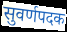
सुवर्णपदक